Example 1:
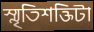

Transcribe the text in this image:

স্মৃতিশক্তিটা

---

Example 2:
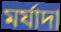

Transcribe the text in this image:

মর্যাদা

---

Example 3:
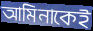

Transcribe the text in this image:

আমিনাকেই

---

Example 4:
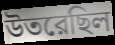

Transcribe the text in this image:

উতরেছিল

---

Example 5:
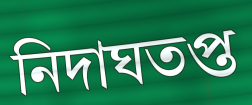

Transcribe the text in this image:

নিদাঘতপ্ত